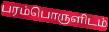
பரம்பொருளிடம்